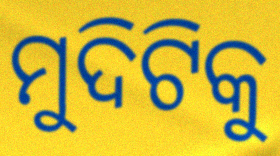
ମୁଦିଟିକୁ